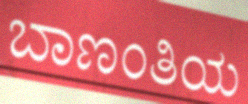
ಬಾಣಂತಿಯ